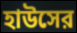
হাউসের